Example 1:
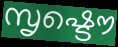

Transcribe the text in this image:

സൃഷ്ടൌ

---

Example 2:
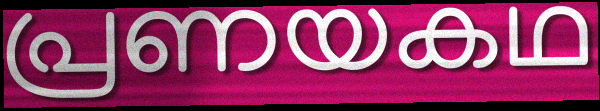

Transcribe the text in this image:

പ്രണയകഥ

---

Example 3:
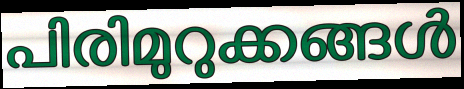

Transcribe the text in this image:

പിരിമുറുക്കങ്ങൾ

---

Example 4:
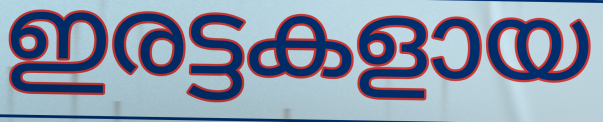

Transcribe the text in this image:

ഇരട്ടകളായ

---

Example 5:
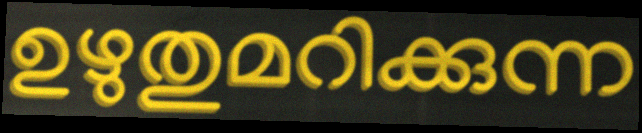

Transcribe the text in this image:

ഉഴുതുമറിക്കുന്ന